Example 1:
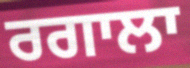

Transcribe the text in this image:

ਰਗਾਲਾ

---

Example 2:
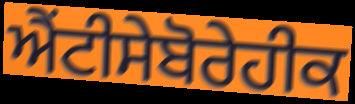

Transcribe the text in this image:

ਐਂਟੀਸੇਬੋਰੇਹੀਕ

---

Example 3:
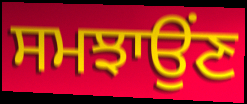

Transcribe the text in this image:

ਸਮਝਾਉਂਣ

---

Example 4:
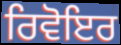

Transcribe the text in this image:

ਰਿਵੋਇਰ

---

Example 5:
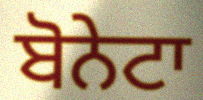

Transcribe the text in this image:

ਬੋਨੇਟਾ